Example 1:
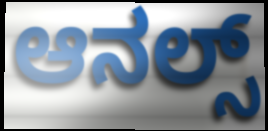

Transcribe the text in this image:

ಆನಲ್ಸ್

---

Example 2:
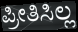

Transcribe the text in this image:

ಪ್ರೀತಿಸಿಲ್ಲ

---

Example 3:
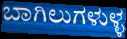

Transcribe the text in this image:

ಬಾಗಿಲುಗಳುಳ್ಳ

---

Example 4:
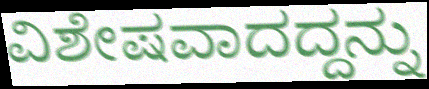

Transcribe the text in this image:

ವಿಶೇಷವಾದದ್ದನ್ನು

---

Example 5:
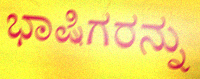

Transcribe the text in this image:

ಭಾಷಿಗರನ್ನು